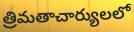
త్రిమతాచార్యులలో